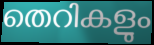
തെറികളും